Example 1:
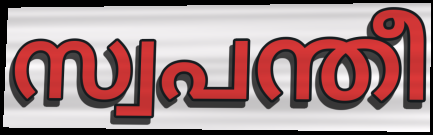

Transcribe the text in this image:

സ്വപന്തീ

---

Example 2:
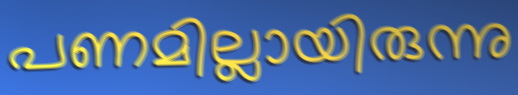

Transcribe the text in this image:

പണമില്ലായിരുന്നു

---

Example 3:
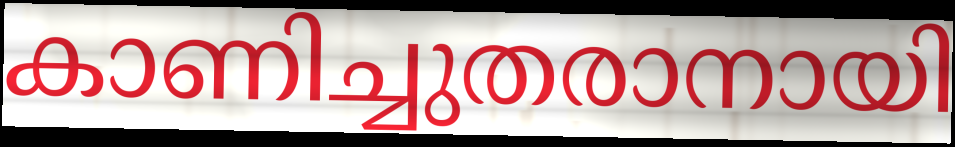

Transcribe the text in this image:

കാണിച്ചുതരാനായി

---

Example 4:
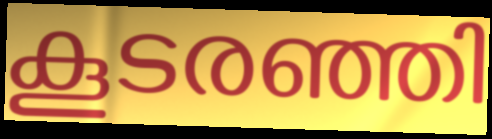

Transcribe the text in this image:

കൂടരഞ്ഞി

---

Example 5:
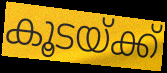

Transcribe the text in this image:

കൂടയ്ക്ക്